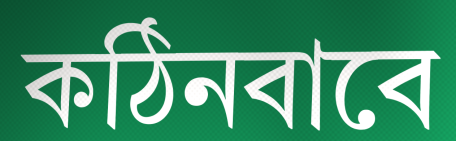
কঠিনবাবে